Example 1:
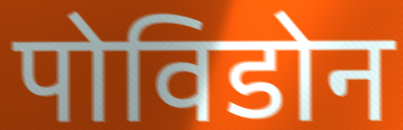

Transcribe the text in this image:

पोविडोन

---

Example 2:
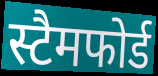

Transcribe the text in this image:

स्टैमफोर्ड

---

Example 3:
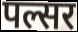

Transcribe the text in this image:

पल्सर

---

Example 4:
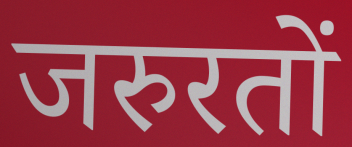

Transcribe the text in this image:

जरुरतों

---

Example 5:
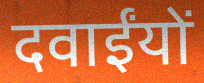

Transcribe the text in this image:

दवाईंयों